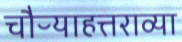
चौऱ्याहत्तराव्या